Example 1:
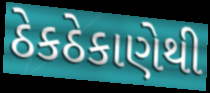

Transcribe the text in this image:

ઠેકઠેકાણેથી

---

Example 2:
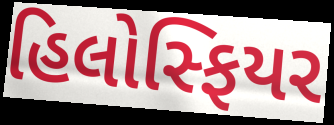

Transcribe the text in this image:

હિલોસ્ફિયર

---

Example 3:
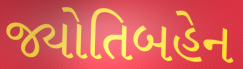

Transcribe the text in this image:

જ્યોતિબહેન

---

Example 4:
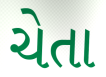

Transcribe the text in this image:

ચેતા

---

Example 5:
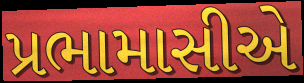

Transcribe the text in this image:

પ્રભામાસીએ